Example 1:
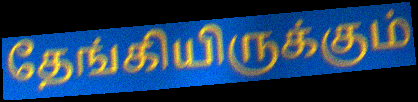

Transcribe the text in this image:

தேங்கியிருக்கும்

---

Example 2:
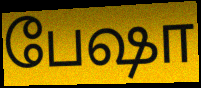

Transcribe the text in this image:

பேஷா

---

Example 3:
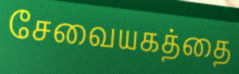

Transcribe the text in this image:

சேவையகத்தை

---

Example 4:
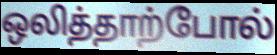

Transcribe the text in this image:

ஒலித்தாற்போல்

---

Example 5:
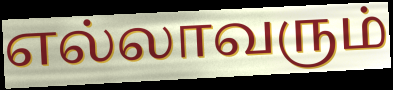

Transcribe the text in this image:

எல்லாவரும்